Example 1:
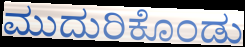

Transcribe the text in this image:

ಮುದುರಿಕೊಂಡು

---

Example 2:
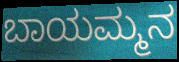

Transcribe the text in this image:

ಬಾಯಮ್ಮನ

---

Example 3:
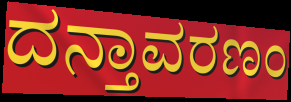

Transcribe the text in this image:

ದನ್ತಾವರಣಂ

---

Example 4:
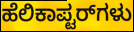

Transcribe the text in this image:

ಹೆಲಿಕಾಪ್ಟರ್‌ಗಳು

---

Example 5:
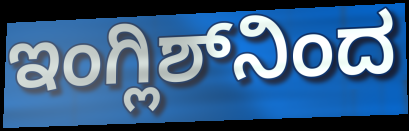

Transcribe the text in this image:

ಇಂಗ್ಲಿಶ್‌ನಿಂದ